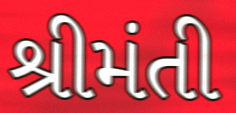
શ્રીમંતી